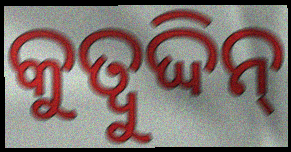
କୁତ୍ବୁଦ୍ଦିନ୍